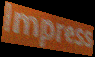
Impress